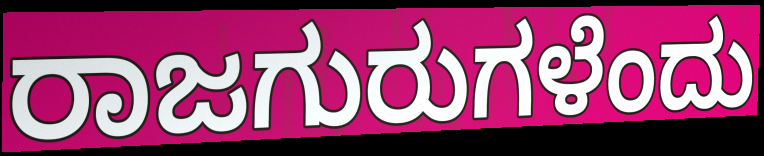
ರಾಜಗುರುಗಳೆಂದು